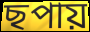
ছপায়